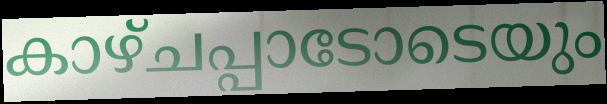
കാഴ്ചപ്പാടോടെയും